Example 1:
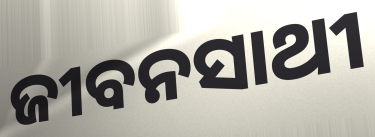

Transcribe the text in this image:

ଜୀବନସାଥୀ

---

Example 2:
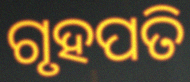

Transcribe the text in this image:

ଗୃହପତି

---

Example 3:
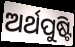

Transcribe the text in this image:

ଅର୍ଥପୁଷ୍ଟି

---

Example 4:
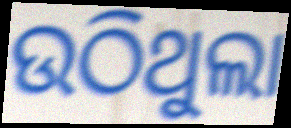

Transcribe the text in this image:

ଉଠିଥୁଲା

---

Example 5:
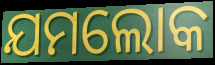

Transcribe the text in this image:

ଯମଲୋକ